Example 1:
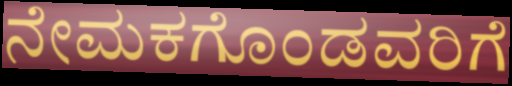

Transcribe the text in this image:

ನೇಮಕಗೊಂಡವರಿಗೆ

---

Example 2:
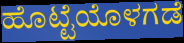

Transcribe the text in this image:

ಹೊಟ್ಟೆಯೊಳಗಡೆ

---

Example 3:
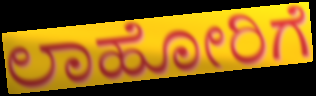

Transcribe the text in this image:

ಲಾಹೋರಿಗೆ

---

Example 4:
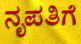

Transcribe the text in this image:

ನೃಪತಿಗೆ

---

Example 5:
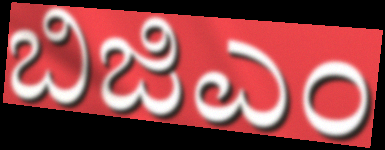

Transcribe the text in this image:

ಬಿಜಿಎಂ